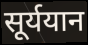
सूर्ययान